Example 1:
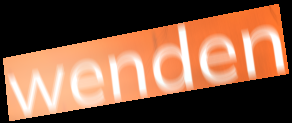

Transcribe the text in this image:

wenden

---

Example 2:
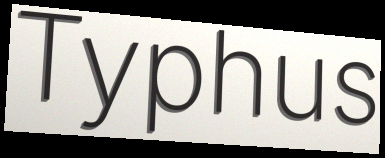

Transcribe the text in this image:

Typhus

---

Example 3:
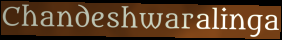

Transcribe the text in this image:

Chandeshwaralinga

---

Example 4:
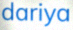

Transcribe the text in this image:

dariya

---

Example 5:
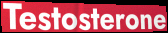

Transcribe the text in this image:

Testosterone